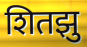
शितझु